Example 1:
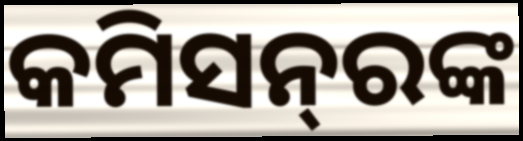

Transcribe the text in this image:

କମିସନ୍‍ରଙ୍କ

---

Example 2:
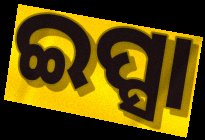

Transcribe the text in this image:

ଇପ୍ସା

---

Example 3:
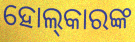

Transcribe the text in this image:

ହୋଲ୍‍କାରଙ୍କ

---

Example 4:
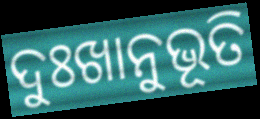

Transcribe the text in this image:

ଦୁଃଖାନୁଭୂତି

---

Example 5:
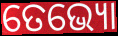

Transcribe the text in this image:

ତେଭ୍ୟୋ